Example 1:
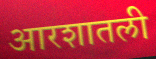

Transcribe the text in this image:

आरशातली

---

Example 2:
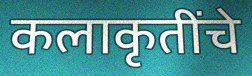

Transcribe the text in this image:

कलाकृतींचे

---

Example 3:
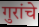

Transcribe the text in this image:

गुरांचे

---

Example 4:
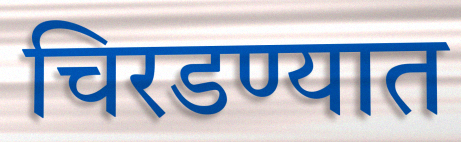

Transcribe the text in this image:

चिरडण्यात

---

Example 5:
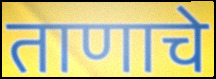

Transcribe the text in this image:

ताणाचे